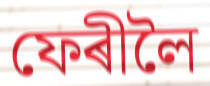
ফেৰীলৈ